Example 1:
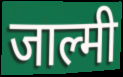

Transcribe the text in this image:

जाल्मी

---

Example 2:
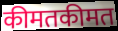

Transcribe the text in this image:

कीमतकीमत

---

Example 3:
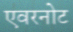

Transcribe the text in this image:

एवरनोट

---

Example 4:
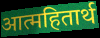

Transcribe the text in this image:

आत्महितार्थ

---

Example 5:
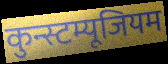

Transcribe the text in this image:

कुन्स्टम्यूजियम